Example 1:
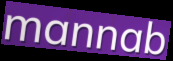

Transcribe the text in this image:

mannab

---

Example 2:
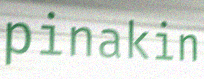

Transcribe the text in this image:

pinakin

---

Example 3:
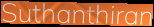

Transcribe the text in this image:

Suthanthiran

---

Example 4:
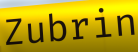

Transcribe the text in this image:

Zubrin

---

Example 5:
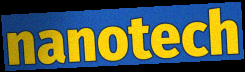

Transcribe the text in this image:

nanotech